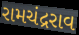
રામચંદ્રરાવ